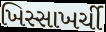
ખિસ્સાખર્ચી